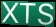
XTS